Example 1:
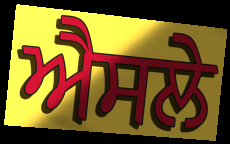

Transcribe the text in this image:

ਐਸਲੇ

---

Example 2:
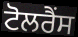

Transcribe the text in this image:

ਟੋਲਰੈਂਸ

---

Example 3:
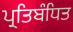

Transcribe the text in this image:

ਪ੍ਰਤਿਬੰਧਿਤ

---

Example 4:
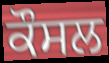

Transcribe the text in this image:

ਕੌਸਲ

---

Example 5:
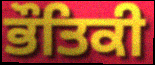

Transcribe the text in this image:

ਭੌਤਿਕੀ